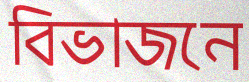
বিভাজনে